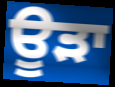
ਊੜਾ